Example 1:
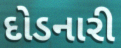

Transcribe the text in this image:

દોડનારી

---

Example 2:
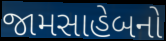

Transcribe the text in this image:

જામસાહેબનો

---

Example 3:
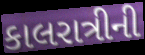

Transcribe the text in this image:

કાલરાત્રીની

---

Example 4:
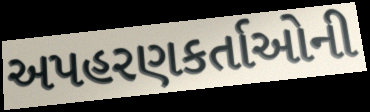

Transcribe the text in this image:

અપહરણકર્તાઓની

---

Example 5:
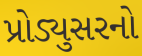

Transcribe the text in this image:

પ્રોડ્યુસરનો